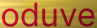
oduve